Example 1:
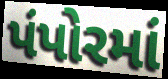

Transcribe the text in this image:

પંપોરમાં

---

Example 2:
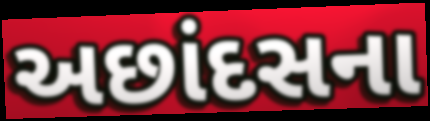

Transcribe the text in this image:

અછાંદસના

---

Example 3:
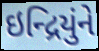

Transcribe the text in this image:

ઇન્દ્રિયુંને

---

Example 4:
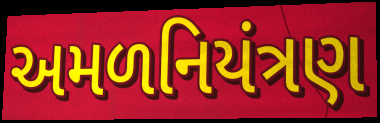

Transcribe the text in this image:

અમળનિયંત્રણ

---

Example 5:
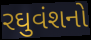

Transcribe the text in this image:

રઘુવંશનો